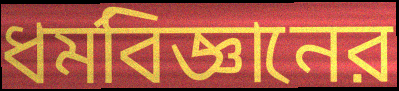
ধর্মবিজ্ঞানের